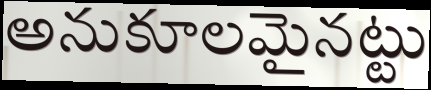
అనుకూలమైనట్టు